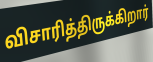
விசாரித்திருக்கிறார்